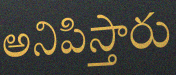
అనిపిస్తారు